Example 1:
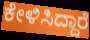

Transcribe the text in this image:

ಕೇಳಿಸಿದ್ದಾರೆ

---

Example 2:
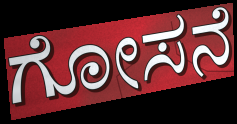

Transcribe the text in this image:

ಗೋಸನೆ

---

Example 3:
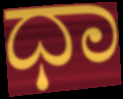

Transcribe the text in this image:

ಧಾ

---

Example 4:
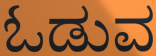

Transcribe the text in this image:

ಓಡುವ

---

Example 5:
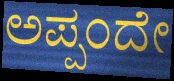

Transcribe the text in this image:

ಅಪ್ಪಂದೇ